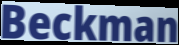
Beckman